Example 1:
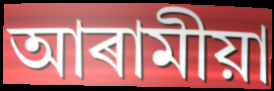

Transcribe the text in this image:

আৰামীয়া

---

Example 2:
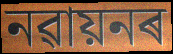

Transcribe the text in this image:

নৱায়নৰ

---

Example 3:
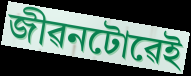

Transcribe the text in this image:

জীৱনটোৱেই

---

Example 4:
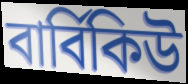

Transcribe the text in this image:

বাৰ্বিকিউ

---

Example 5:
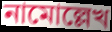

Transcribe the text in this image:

নামোল্লেখ